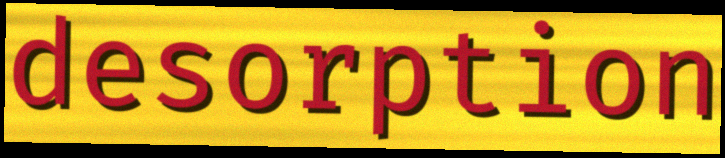
desorption